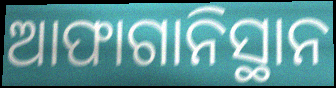
ଆଫାଗାନିସ୍ଥାନ